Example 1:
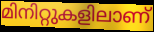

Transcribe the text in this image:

മിനിറ്റുകളിലാണ്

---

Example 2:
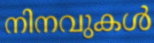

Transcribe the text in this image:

നിനവുകൾ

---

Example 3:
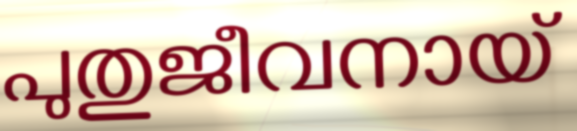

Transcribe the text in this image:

പുതുജീവനായ്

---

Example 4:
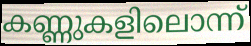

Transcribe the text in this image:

കണ്ണുകളിലൊന്ന്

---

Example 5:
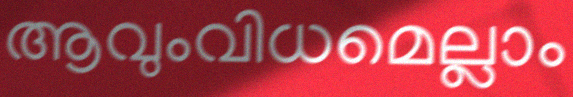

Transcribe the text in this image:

ആവുംവിധമെല്ലാം